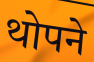
थोपने